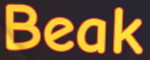
Beak